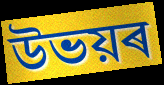
উভয়ৰ